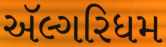
ઍલ્ગરિધમ